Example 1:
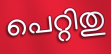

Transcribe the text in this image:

പെറ്റിതു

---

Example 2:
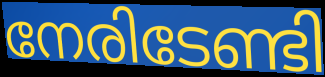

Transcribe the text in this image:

നേരിടേണ്ടി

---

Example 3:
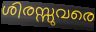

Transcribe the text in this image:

ശിരസ്സുവരെ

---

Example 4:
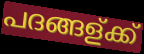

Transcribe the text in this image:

പദങ്ങള്ക്ക്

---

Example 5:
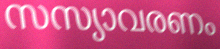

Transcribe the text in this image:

സസ്യാവരണം